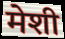
मेशी